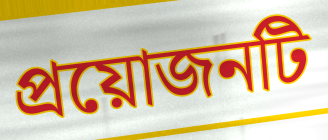
প্রয়োজনটি